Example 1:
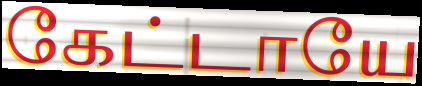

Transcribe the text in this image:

கேட்டாயே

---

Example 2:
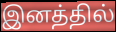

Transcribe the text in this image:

இனத்தில்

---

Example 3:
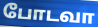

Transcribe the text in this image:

போடவா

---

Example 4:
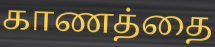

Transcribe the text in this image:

காணத்தை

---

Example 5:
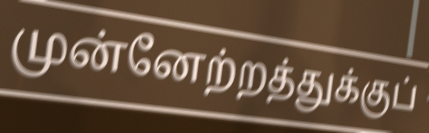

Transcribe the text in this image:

முன்னேற்றத்துக்குப்